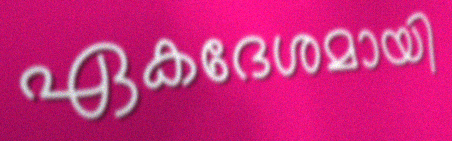
ഏകദേശമായി